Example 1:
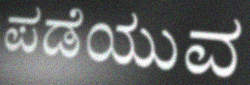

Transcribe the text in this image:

ಪಡೆಯುವ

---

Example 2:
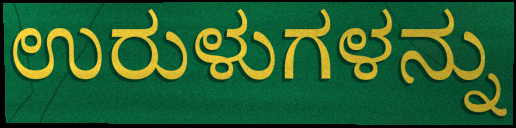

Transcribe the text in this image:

ಉರುಳುಗಳನ್ನು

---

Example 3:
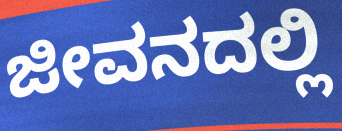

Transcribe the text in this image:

ಜೀವನದಲ್ಲಿ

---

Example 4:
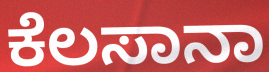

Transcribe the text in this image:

ಕೆಲಸಾನಾ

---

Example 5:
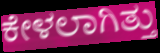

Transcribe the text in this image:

ಕೇಳಲಾಗಿತ್ತು